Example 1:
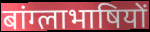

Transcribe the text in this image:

बांग्लाभाषियों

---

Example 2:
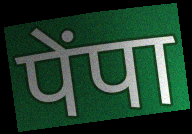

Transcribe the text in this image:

पेंपा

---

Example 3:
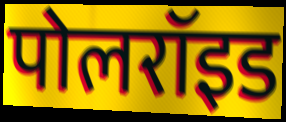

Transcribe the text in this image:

पोलरॉइड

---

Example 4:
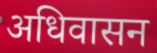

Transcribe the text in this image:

अधिवासन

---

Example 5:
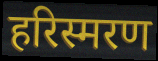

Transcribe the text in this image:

हरिस्मरण